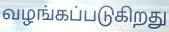
வழங்கப்படுகிறது